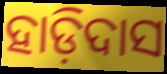
ହାଡ଼ିଦାସ